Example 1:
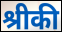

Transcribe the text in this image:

श्रीकी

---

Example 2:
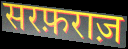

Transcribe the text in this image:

सरफ़राज़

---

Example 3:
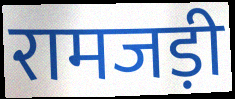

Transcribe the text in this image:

रामजड़ी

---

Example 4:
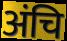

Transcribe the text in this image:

अंचि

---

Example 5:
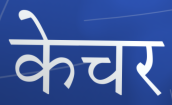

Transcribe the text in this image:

केचर